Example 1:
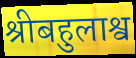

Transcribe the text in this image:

श्रीबहुलाश्व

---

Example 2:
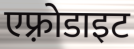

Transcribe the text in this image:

एफ़्रोडाइट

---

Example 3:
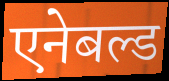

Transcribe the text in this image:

एनेबल्ड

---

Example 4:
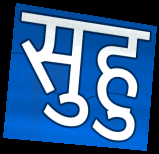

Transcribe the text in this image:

सुहु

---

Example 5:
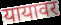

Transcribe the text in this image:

यायावर